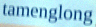
tamenglong